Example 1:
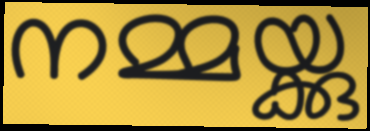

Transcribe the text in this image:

നമ്മയ്ക്കു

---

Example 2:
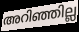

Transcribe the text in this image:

അറിഞ്ഞില്ല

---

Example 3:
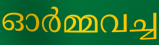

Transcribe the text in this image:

ഓർമ്മവച്ച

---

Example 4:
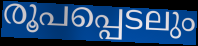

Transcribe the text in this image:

രൂപപ്പെടലും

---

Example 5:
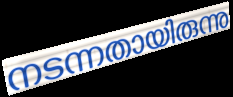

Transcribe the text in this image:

നടന്നതായിരുന്നു